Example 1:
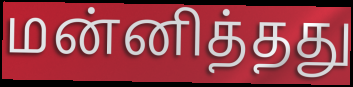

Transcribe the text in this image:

மன்னித்தது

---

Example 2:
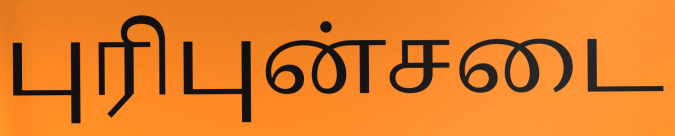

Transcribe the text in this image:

புரிபுன்சடை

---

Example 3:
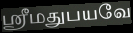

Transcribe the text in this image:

ஸ்ரீமதுபயவே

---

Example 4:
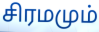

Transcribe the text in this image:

சிரமமும்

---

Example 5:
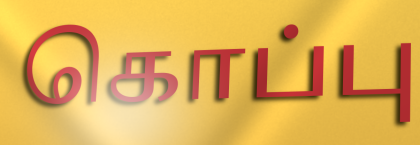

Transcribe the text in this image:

கொப்பு